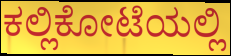
ಕಲ್ಲಿಕೋಟೆಯಲ್ಲಿ